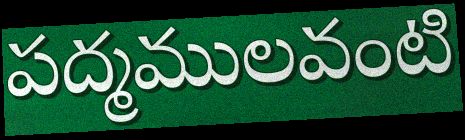
పద్మములవంటి